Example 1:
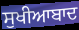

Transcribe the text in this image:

ਸੁਖੀਆਬਾਦ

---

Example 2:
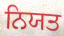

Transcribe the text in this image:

ਨਿਯਤ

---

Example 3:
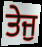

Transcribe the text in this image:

ਤੇਜੁ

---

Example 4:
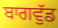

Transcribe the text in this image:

ਬਾਗਵੁੱਡ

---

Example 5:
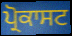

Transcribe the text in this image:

ਪ੍ਰੋਕਾਸਟ